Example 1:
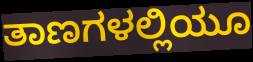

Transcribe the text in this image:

ತಾಣಗಳಲ್ಲಿಯೂ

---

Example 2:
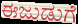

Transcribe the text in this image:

ಈಜುಡುಗೆ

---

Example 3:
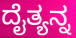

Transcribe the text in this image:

ದೈತ್ಯನ್ನ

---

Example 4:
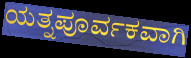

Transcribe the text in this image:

ಯತ್ನಪೂರ್ವಕವಾಗಿ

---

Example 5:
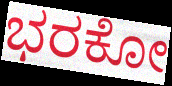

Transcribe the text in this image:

ಭರಕೋ